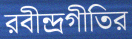
রবীন্দ্রগীতির